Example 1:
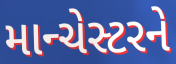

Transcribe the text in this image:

માન્ચેસ્ટરને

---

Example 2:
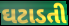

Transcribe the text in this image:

ઘટાડતી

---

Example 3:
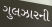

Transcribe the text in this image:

ગુલઝારની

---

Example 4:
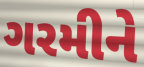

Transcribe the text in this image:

ગરમીને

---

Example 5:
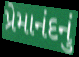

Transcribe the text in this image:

પ્રેમાનંદનું